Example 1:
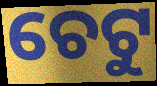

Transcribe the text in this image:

ଚେଟୁ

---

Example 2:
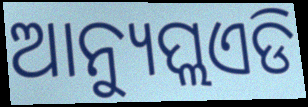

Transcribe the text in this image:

ଆନ୍ୟୁପ୍ଲଏଡି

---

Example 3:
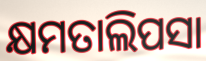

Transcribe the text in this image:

କ୍ଷମତାଲିପସା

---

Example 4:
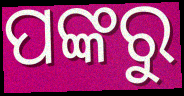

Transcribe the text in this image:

ପଙ୍କରୁ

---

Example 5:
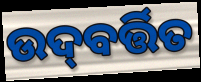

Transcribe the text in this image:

ଉଦ୍‌ବର୍ତ୍ତିତ